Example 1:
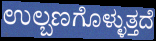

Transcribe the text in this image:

ಉಲ್ಬಣಗೊಳ್ಳುತ್ತದೆ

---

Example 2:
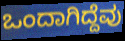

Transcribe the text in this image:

ಒಂದಾಗಿದ್ದೆವು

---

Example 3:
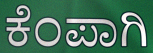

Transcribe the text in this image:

ಕೆಂಪಾಗಿ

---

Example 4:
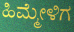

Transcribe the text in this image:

ಹಿಮ್ಮೇಳಿಗ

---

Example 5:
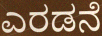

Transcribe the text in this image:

ಎರಡನೆ